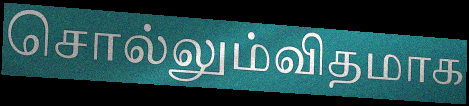
சொல்லும்விதமாக